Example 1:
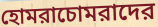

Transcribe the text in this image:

হোমরাচোমরাদের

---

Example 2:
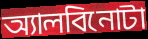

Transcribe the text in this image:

অ্যালবিনোটা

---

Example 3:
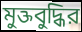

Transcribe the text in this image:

মুক্তবুদ্ধির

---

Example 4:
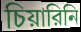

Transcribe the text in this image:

চিয়ারিনি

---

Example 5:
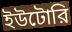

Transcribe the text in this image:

ইউটোরি